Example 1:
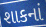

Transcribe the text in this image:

શાકનાં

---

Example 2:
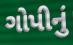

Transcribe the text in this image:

ગોપીનું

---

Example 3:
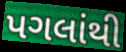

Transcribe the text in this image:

પગલાંથી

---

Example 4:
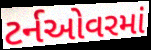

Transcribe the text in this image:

ટર્નઓવરમાં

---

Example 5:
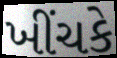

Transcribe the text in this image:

ખીંચકે